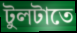
টুলটাতে